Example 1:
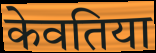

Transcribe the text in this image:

केवतिया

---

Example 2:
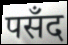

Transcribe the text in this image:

पसँद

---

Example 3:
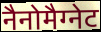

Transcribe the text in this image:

नैनोमैग्नेट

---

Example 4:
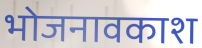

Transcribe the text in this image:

भोजनावकाश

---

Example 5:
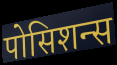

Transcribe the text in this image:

पोसिशन्स